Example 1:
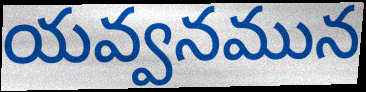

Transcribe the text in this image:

యవ్వనమున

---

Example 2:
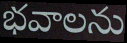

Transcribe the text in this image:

భవాలను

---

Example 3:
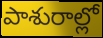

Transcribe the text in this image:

పాశురాల్లో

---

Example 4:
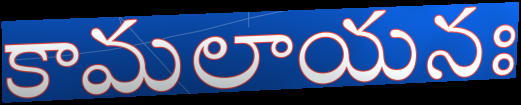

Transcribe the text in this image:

కామలాయనః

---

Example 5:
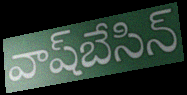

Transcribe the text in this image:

వాష్‌బేసిన్